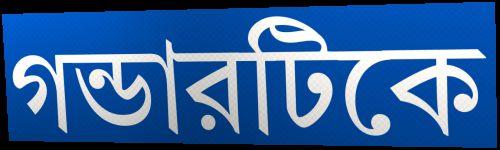
গন্ডারটিকে